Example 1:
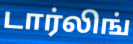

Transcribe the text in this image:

டார்லிங்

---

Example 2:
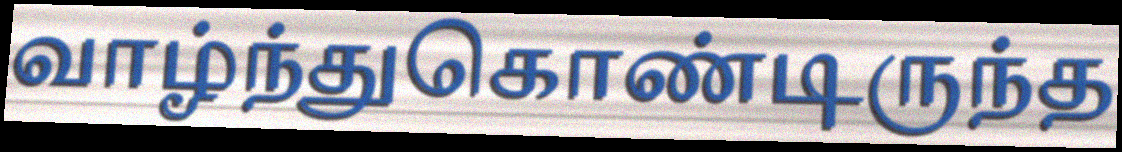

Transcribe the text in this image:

வாழ்ந்துகொண்டிருந்த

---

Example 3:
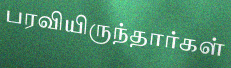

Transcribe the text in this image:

பரவியிருந்தார்கள்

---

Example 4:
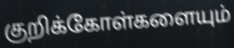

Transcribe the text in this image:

குறிக்கோள்களையும்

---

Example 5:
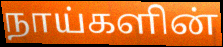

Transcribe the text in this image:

நாய்களின்